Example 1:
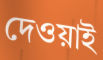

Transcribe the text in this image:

দেওয়াই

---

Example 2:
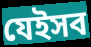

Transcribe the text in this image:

যেইসব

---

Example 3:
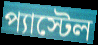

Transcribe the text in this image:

প্যাস্টেল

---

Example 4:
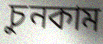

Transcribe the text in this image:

চুনকাম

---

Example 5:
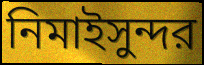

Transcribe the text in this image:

নিমাইসুন্দর